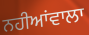
ਨਹੀਆਂਵਾਲਾ